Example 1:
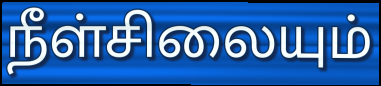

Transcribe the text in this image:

நீள்சிலையும்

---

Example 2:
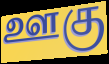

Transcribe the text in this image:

ஊகு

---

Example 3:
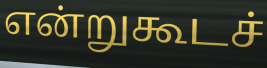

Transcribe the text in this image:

என்றுகூடச்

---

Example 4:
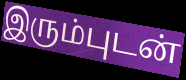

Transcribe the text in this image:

இரும்புடன்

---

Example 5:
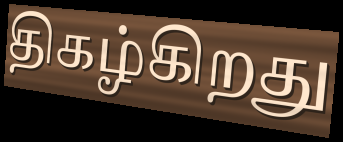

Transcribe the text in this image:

திகழ்கிறது